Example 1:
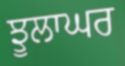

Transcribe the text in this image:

ਝੂਲਾਘਰ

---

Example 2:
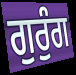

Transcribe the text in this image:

ਗੁਰੁੰਗ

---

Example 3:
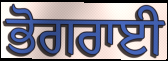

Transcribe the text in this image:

ਭੋਗਰਾਈ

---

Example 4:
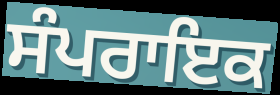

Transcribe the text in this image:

ਸੰਪਰਾਇਕ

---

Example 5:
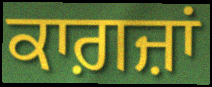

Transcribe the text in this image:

ਕਾਗ਼ਜ਼ਾਂ